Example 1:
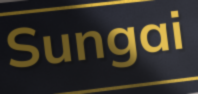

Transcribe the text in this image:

Sungai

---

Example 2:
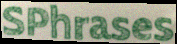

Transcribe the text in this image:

SPhrases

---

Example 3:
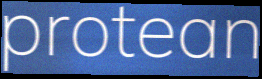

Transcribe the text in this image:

protean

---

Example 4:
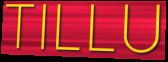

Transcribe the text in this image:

TILLU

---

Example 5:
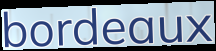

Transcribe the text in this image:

bordeaux